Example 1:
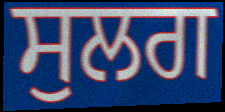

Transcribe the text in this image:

ਸੁਲਗ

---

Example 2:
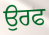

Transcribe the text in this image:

ਉਰਫ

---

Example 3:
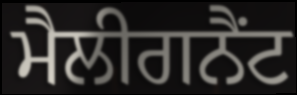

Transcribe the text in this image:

ਮੈਲੀਗਨੈਂਟ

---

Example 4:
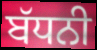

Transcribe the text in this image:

ਬੱਧਨੀ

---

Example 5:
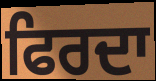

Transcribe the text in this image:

ਫਿਰਦਾ